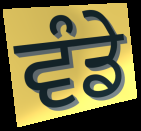
ਵੰਡੇ